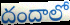
దందాలో